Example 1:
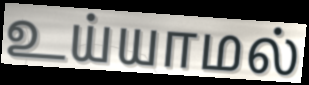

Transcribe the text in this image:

உய்யாமல்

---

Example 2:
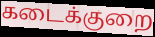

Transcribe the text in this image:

கடைக்குறை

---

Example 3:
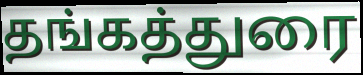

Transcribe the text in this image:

தங்கத்துரை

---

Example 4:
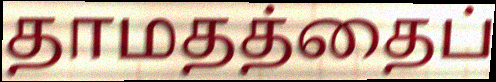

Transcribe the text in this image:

தாமதத்தைப்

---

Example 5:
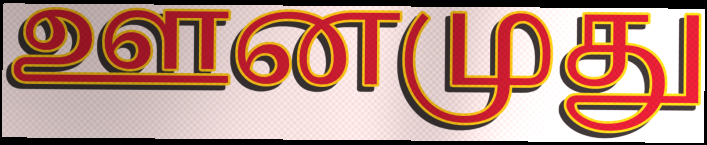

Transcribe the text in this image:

ஊனமுது